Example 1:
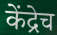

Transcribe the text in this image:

केंद्रेच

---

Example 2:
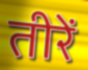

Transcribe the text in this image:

तीरें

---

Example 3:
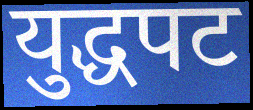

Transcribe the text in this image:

युद्धपट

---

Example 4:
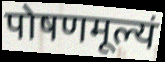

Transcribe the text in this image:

पोषणमूल्यं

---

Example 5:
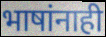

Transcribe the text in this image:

भाषांनाही